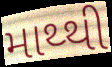
માથ્થી